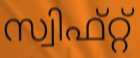
സ്വിഫ്റ്റ്